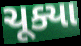
ચૂક્યા